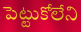
పెట్టుకోలేని